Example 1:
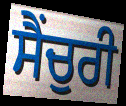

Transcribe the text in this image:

ਸੈਂਚੁਰੀ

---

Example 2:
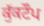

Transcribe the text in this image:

ਕੁੱਕਟੌਪ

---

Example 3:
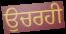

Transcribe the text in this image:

ਉਚਰਹੀ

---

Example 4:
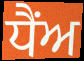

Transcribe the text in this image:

ਧੈਂਅ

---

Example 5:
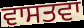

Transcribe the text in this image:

ਵਾਸਤਵਾ